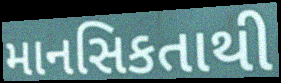
માનસિકતાથી